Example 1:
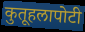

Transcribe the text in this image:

कुतूहलापोटी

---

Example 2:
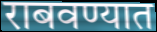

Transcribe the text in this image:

राबवण्यात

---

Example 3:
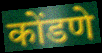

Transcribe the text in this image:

कोंडणे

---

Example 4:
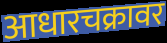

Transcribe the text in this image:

आधारचक्रावर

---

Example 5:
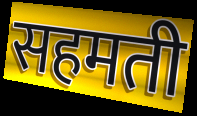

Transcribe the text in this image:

सहमती